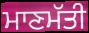
ਮਾਣਮੱਤੀ